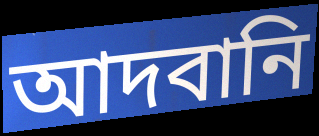
আদবানি